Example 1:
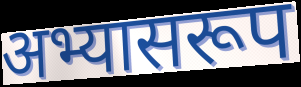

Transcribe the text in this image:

अभ्यासरूप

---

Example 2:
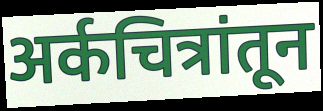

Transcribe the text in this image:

अर्कचित्रांतून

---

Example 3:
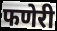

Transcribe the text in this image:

फणेरी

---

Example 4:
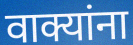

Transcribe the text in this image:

वाक्यांना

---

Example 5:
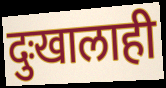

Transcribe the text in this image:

दुःखालाही